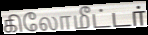
கிலோமீட்டர்